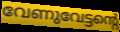
വേണുവേട്ടന്റെ